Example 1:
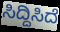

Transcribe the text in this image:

ಸಿದ್ದಿಸಿದೆ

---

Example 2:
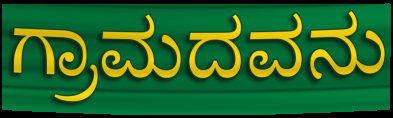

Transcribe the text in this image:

ಗ್ರಾಮದವನು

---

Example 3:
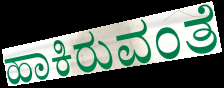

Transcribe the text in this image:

ಹಾಕಿರುವಂತೆ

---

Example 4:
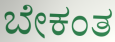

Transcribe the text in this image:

ಬೇಕಂತ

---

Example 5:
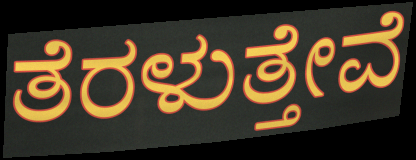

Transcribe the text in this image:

ತೆರಳುತ್ತೇವೆ